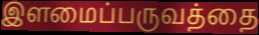
இளமைப்பருவத்தை